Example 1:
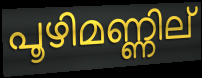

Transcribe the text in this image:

പൂഴിമണ്ണില്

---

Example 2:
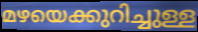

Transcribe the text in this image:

മഴയെക്കുറിച്ചുള്ള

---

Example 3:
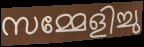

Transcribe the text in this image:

സമ്മേളിച്ചു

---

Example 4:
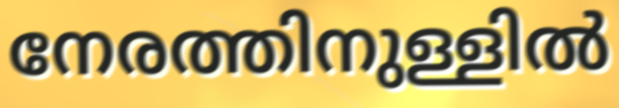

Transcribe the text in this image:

നേരത്തിനുള്ളിൽ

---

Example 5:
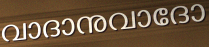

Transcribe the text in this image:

വാദാനുവാദോ